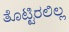
ತೊಟ್ಟಿರಲಿಲ್ಲ